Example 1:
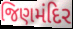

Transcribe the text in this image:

જિણમંદિર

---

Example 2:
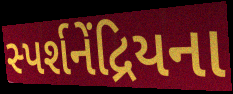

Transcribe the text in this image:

સ્પર્શનેંદ્રિયના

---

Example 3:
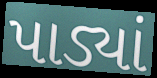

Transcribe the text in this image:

પાડ્યાં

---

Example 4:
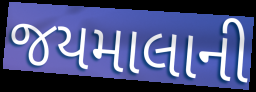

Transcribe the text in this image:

જયમાલાની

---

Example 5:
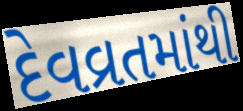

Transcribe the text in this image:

દેવવ્રતમાંથી